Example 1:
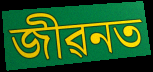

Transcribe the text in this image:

জীৱনত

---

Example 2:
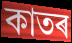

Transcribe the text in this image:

কাতৰ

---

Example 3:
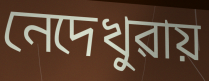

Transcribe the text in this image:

নেদেখুৱায়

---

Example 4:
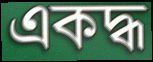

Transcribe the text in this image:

একদ্ধ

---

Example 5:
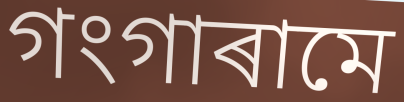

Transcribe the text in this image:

গংগাৰামে